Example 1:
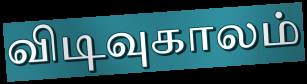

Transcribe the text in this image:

விடிவுகாலம்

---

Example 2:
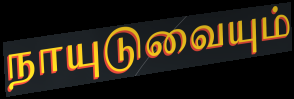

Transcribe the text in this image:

நாயுடுவையும்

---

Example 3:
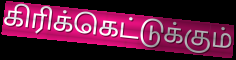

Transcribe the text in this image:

கிரிக்கெட்டுக்கும்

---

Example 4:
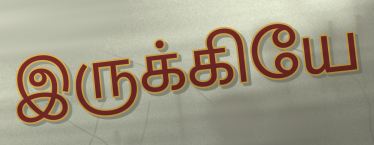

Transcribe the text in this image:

இருக்கியே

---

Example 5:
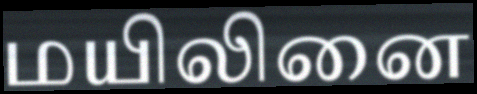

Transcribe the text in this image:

மயிலினை